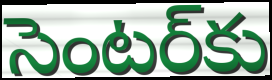
సెంటర్‌కు